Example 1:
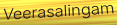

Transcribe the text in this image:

Veerasalingam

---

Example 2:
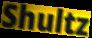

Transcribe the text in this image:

Shultz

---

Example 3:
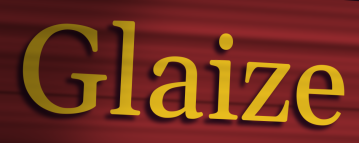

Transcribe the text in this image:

Glaize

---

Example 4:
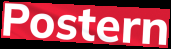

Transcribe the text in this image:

Postern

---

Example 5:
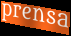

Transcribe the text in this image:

prensa